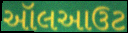
ઑલઆઉટ